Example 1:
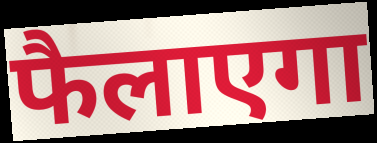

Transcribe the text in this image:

फैलाएगा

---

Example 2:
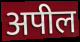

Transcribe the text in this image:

अपील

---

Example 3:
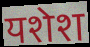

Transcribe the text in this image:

यशेश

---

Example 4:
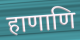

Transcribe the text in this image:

हाणाणि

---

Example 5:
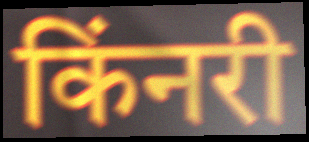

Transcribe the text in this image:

किंनरी